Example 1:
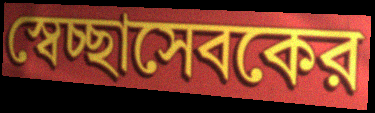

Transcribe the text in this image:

স্বেচ্ছাসেবকের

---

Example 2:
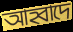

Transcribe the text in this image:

আহ্বাদে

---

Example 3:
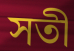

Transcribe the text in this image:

সতী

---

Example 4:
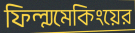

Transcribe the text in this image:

ফিল্মমেকিংয়ের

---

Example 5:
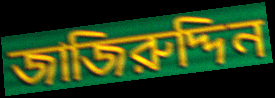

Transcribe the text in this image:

জাজিরুদ্দিন